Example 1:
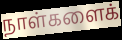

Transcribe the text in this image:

நாள்களைக்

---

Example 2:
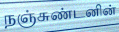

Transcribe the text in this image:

நஞ்சுண்டனின்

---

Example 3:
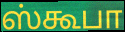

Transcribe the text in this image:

ஸ்கூபா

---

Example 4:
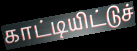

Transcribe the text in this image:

காட்டியிட்டுச்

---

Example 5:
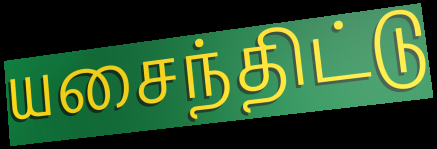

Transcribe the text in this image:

யசைந்திட்டு